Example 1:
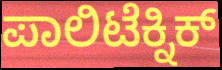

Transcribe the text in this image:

ಪಾಲಿಟೆಕ್ನಿಕ್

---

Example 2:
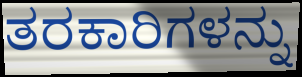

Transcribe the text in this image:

ತರಕಾರಿಗಳನ್ನು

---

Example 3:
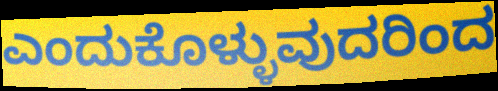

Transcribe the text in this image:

ಎಂದುಕೊಳ್ಳುವುದರಿಂದ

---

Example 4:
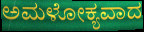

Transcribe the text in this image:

ಅಮಳೋಕ್ಯವಾದ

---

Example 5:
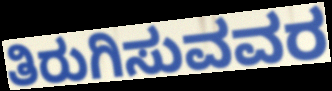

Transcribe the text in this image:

ತಿರುಗಿಸುವವರ